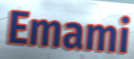
Emami